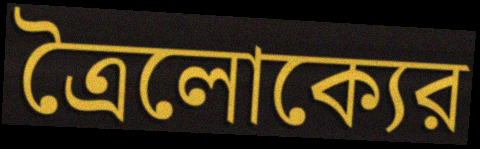
ত্রৈলোক্যের